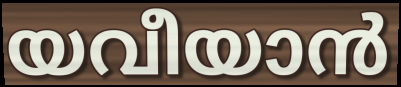
യവീയാൻ